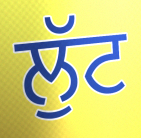
ਲੁੱਟ